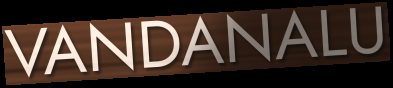
VANDANALU